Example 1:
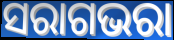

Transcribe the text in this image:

ସରାଗଭରା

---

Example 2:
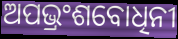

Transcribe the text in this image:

ଅପଭ୍ରଂଶବୋଧିନୀ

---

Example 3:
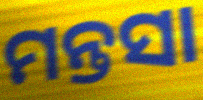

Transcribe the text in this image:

ମନ୍ତସା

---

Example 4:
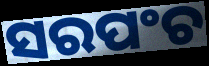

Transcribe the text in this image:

ସରପଂଚ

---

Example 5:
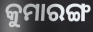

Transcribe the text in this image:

କୁମାରଙ୍ଗ